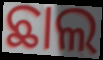
ଛାଲ